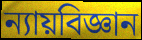
ন্যায়বিজ্ঞান